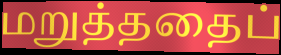
மறுத்ததைப்